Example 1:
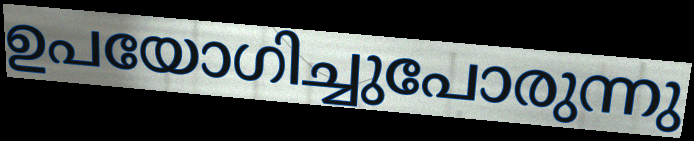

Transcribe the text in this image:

ഉപയോഗിച്ചുപോരുന്നു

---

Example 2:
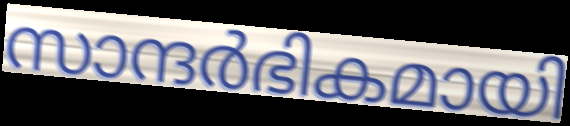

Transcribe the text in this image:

സാന്ദർഭികമായി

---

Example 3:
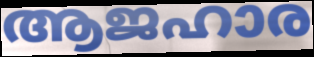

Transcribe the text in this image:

ആജഹാര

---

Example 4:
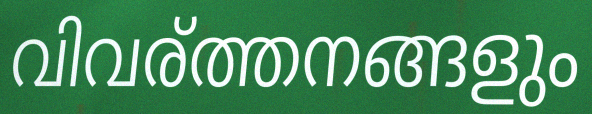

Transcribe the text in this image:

വിവര്ത്തനങ്ങളും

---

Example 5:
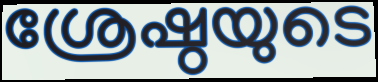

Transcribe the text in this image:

ശ്രേഷ്ഠയുടെ